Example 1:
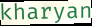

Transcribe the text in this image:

kharyan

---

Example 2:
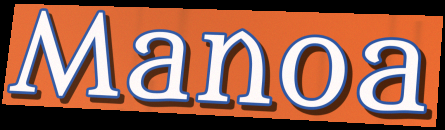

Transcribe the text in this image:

Manoa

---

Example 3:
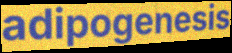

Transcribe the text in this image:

adipogenesis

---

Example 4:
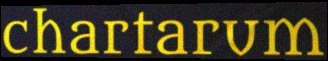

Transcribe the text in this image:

chartarum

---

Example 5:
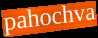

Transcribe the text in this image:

pahochva